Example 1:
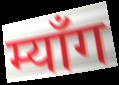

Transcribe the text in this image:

म्याँग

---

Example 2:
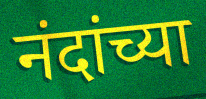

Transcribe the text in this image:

नंदांच्या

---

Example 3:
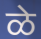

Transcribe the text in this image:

ळे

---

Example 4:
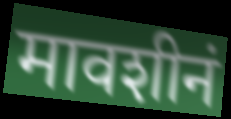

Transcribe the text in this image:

मावशीनं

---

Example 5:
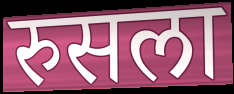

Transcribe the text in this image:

रुसला